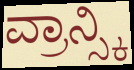
ವ್ರಾನ್ಸ್ಕಿ